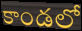
కాండలో